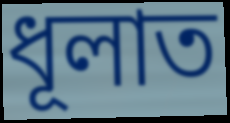
ধূলাত